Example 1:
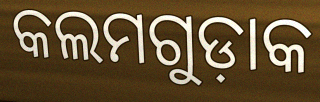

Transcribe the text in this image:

କଲମଗୁଡ଼ାକ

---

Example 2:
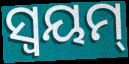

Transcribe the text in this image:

ସ୍ୱୟମ୍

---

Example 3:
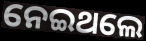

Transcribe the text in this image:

ନେଇଥଲେ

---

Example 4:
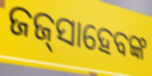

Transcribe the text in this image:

ଜଜ୍‍ସାହେବଙ୍କ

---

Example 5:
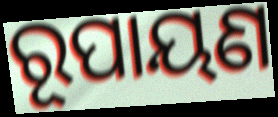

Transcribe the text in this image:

ରୂପାୟଣ